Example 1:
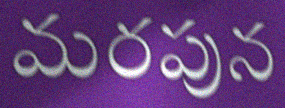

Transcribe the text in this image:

మరపున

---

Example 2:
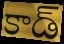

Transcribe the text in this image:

కాడ్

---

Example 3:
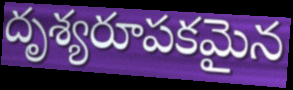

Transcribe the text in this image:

దృశ్యరూపకమైన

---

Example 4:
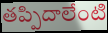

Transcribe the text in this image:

తప్పిదాలేంటి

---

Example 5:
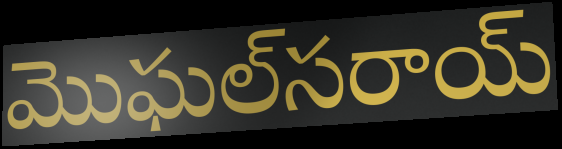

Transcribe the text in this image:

మొఘల్‌సరాయ్